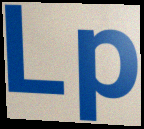
Lp